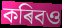
কৰিবও